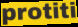
protiti